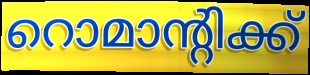
റൊമാന്റിക്ക്